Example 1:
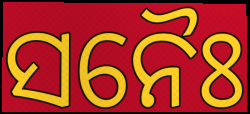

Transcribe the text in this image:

ସନୈଃ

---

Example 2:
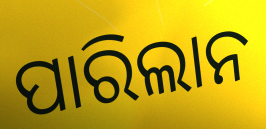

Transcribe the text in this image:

ପାରିଲାନ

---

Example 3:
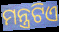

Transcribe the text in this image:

ମନ୍ତ୍ରଟିଏ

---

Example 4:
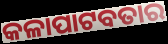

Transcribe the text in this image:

କଳାପାଟବତାର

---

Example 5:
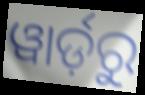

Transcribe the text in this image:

ୱାର୍ଡ଼ରୁ